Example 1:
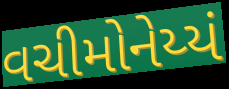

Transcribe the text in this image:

વચીમોનેય્યં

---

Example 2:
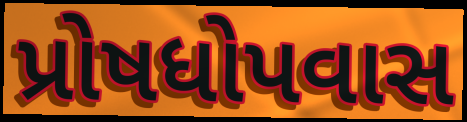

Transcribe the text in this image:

પ્રોષધોપવાસ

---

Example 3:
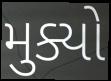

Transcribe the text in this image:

મુક્યો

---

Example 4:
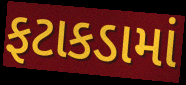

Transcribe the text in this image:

ફટાકડામાં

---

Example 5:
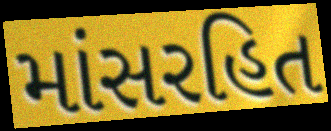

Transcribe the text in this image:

માંસરહિત